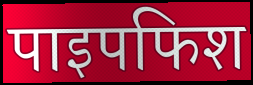
पाइपफिश